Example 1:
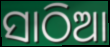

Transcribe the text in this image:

ସାଠିଆ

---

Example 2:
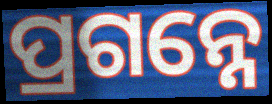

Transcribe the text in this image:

ପ୍ରଗନ୍ନେ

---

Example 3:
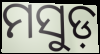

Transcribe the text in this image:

ମସୁଡ଼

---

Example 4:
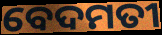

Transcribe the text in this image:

ବେଦମତୀ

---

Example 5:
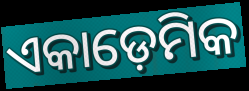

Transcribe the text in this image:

ଏକାଡ଼େମିକ